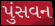
પુંસવન